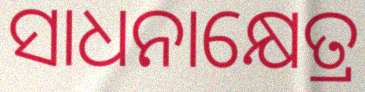
ସାଧନାକ୍ଷେତ୍ର